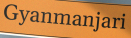
Gyanmanjari